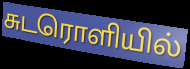
சுடரொளியில்